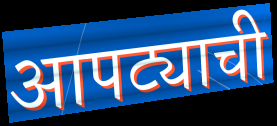
आपट्याची